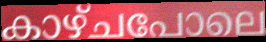
കാഴ്ചപോലെ